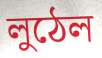
লুঠেল